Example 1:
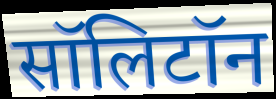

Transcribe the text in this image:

सॉलिटॉन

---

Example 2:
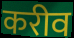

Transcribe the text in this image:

करीव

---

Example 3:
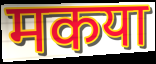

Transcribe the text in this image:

मकया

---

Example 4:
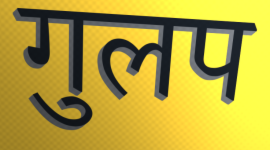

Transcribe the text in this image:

गुलप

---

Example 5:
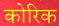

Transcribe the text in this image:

कोरिक